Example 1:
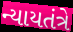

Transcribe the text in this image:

ન્યાયતંત્રે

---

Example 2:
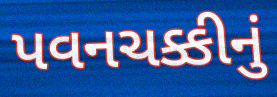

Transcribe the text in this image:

પવનચક્કીનું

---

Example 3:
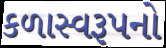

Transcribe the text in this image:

કળાસ્વરૂપનો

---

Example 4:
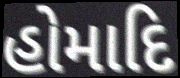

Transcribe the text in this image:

હોમાદિ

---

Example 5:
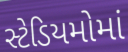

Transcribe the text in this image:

સ્ટેડિયમોમાં